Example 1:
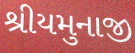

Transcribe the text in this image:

શ્રીયમુનાજી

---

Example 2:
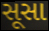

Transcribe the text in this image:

સૂસા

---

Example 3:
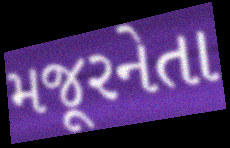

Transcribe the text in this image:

મજૂરનેતા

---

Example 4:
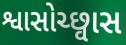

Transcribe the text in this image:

શ્વાસોચ્છ્વાસ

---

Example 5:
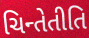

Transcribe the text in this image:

ચિન્તેતીતિ